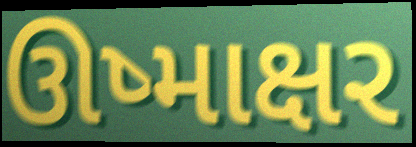
ઊષ્માક્ષર